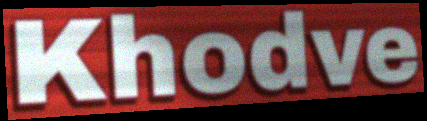
Khodve